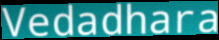
Vedadhara